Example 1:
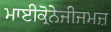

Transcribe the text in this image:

ਮਾਈਕ੍ਰੋਨੇਜੀਜਮਜ਼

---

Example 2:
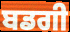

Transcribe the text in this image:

ਬਡਗੀ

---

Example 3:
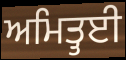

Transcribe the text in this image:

ਅਮਿਤ੍ਤਈ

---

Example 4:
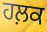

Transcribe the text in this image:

ਹਲ਼ਕ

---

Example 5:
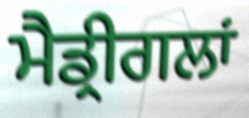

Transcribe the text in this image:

ਮੈਡ੍ਰੀਗਲਾਂ